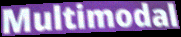
Multimodal